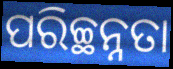
ପରିଚ୍ଛନ୍ନତା